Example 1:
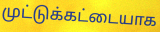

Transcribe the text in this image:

முட்டுக்கட்டையாக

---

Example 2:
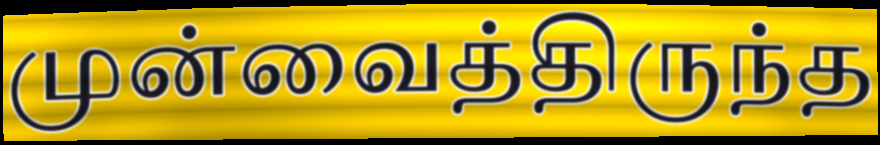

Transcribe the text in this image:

முன்வைத்திருந்த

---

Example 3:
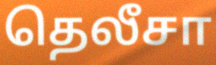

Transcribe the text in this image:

தெலீசா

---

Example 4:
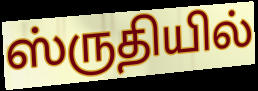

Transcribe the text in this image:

ஸ்ருதியில்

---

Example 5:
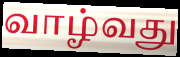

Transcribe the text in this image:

வாழ்வது